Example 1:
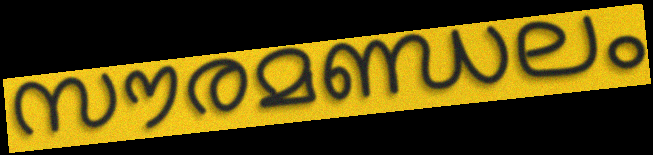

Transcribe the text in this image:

സൗരമണ്ഡലം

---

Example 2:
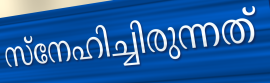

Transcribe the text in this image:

സ്നേഹിച്ചിരുന്നത്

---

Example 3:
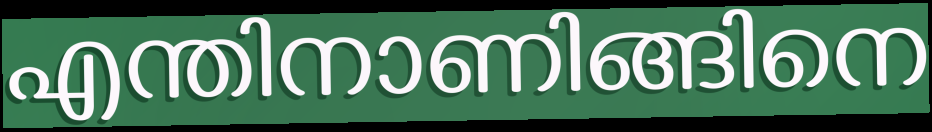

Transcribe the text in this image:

എന്തിനാണിങ്ങിനെ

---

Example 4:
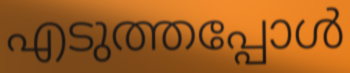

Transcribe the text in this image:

എടുത്തപ്പോൾ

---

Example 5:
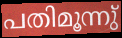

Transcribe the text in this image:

പതിമൂന്നു്